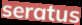
seratus